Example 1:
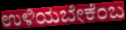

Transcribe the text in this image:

ಉಳಿಯಬೇಕೆಂಬ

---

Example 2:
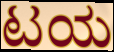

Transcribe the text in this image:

ಟಯ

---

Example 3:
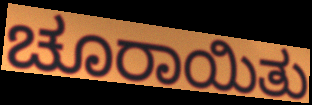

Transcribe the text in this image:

ಚೂರಾಯಿತು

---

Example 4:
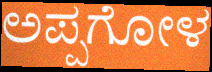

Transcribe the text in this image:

ಅಪ್ಪಗೋಳ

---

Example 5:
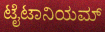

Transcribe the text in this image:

ಟೈಟಾನಿಯಮ್